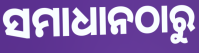
ସମାଧାନଠାରୁ